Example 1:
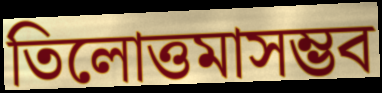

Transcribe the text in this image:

তিলোত্তমাসম্ভব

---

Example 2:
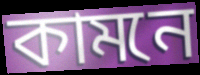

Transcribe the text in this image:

কামনে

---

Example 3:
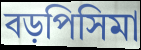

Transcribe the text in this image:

বড়পিসিমা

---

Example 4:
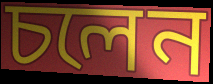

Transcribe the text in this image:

চলেন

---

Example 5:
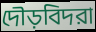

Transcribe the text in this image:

দৌড়বিদরা